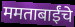
ममताबाईंचे